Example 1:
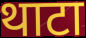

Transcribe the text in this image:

थाटा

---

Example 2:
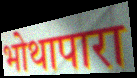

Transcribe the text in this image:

भोथापारा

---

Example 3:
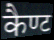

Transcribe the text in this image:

कैण्ट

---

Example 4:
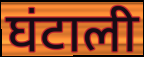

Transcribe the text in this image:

घंटाली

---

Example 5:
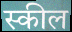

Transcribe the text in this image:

स्‍कील